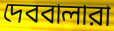
দেববালারা